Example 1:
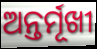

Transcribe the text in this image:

ଅନ୍ତର୍ମୂଖୀ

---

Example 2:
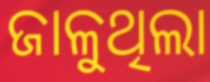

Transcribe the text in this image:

ଜାଳୁଥିଲା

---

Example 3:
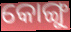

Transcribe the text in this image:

କୋଙ୍ଗୁ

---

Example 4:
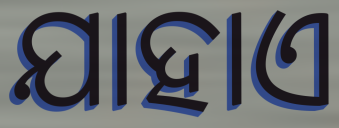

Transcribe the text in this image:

ଯାହାଏ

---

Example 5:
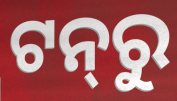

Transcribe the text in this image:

ଟନ୍‍ରୁ